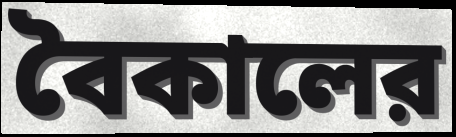
বৈকালের